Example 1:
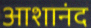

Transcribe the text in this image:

आशानंद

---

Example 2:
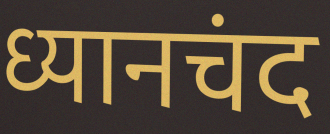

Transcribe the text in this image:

ध्यानचंद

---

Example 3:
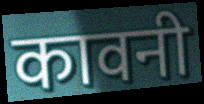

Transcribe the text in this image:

कावनी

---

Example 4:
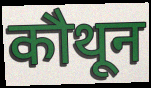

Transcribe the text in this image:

कौथून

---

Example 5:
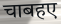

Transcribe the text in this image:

चाबहए